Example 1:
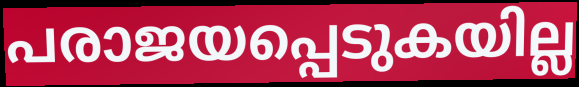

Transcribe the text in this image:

പരാജയപ്പെടുകയില്ല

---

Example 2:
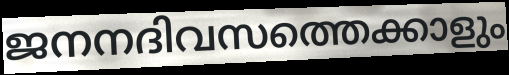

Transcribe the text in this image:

ജനനദിവസത്തെക്കാളും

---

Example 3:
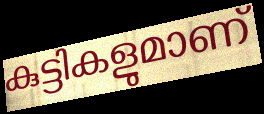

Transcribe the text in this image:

കുട്ടികളുമാണ്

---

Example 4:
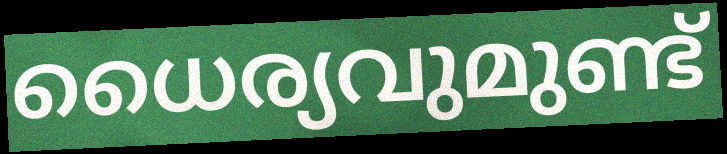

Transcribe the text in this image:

ധൈര്യവുമുണ്ട്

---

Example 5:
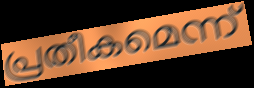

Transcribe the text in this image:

പ്രതീകമെന്ന്